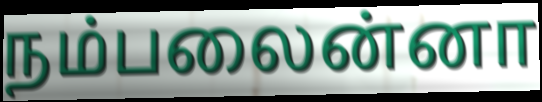
நம்பலைன்னா